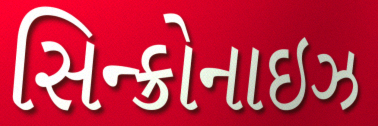
સિન્ક્રોનાઇઝ